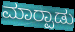
ಮಾರ‍್ಪಾಡು